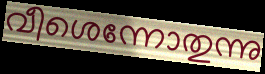
വീശെന്നോതുന്നു